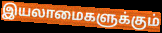
இயலாமைகளுக்கும்